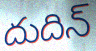
దుదిన్